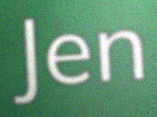
Jen